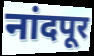
नांदपूर